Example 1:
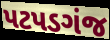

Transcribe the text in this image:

પટપડગંજ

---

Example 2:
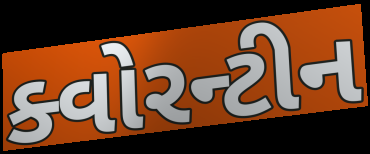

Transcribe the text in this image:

ક્વોરન્ટીન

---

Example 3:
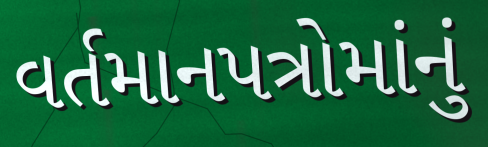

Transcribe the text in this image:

વર્તમાનપત્રોમાંનું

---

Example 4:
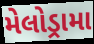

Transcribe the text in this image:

મેલોડ્રામા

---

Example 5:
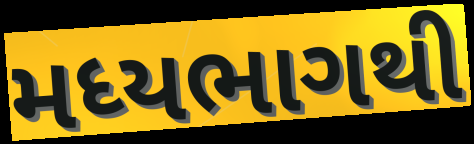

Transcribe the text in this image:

મધ્યભાગથી